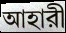
আহারী